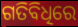
ଗତିବିଧିରେ